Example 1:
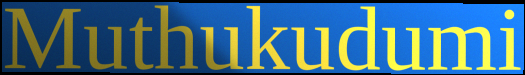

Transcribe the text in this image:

Muthukudumi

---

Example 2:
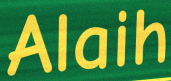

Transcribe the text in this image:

Alaih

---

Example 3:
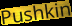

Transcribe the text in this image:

Pushkin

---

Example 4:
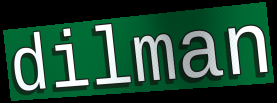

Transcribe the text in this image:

dilman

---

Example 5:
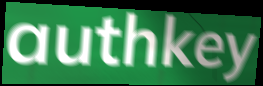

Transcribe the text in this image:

authkey